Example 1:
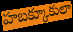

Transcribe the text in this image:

హబక్కూకులా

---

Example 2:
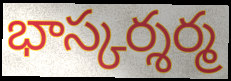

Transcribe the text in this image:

భాస్కర్శర్మ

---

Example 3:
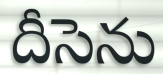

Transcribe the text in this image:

దీసెను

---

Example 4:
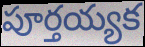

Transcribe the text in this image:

పూర్తయ్యక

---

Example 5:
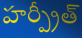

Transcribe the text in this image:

హర్ప్రీత్